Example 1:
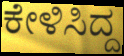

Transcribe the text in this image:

ಕೇಳಿಸಿದ್ದ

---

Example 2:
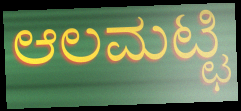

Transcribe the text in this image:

ಆಲಮಟ್ಟಿ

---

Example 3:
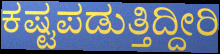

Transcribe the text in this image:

ಕಷ್ಟಪಡುತ್ತಿದ್ದೀರಿ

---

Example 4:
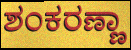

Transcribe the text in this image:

ಶಂಕರಣ್ಣಾ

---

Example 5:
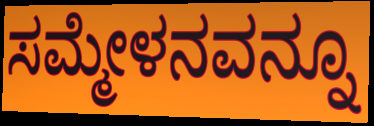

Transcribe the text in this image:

ಸಮ್ಮೇಳನವನ್ನೂ